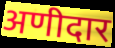
अणीदार